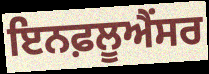
ਇਨਫ਼ਲੂਐਂਸਰ